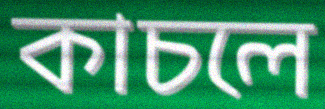
কাচলে